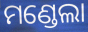
ମଣ୍ଡେଲା